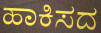
ಹಾಕಿಸದ